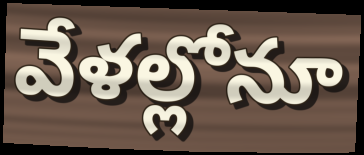
వేళల్లోనూ